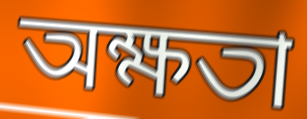
অক্ষতা